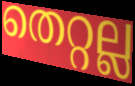
തെറ്റല്ല